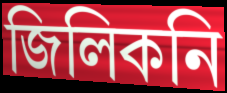
জিলিকনি